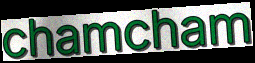
chamcham